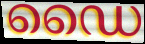
ഡൈ